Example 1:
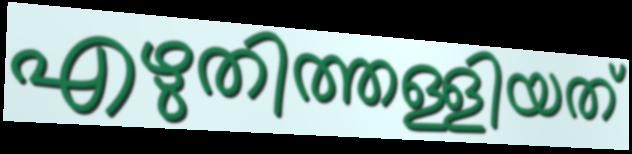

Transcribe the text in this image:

എഴുതിത്തള്ളിയത്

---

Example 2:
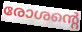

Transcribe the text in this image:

രോശന്റെ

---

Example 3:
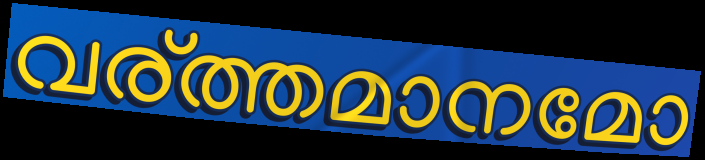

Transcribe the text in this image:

വര്ത്തമാനമോ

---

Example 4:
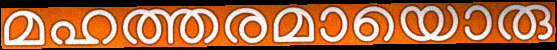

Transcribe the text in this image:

മഹത്തരമായൊരു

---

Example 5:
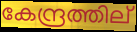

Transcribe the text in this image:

കേന്ദ്രത്തില്